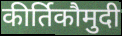
कीर्तिकौमुदी